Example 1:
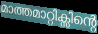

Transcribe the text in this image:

മാത്തമാറ്റിക്സിന്റെ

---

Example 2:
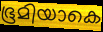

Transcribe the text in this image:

ഭൂമിയാകെ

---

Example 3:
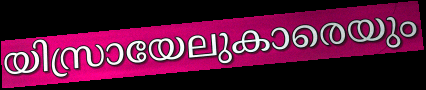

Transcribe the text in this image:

യിസ്രായേലുകാരെയും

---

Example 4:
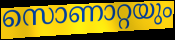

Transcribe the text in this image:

സൊണാറ്റയും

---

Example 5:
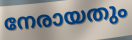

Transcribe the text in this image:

നേരായതും